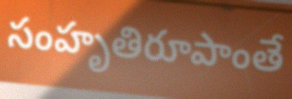
సంహృతిరూపాంతే